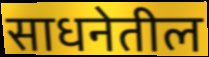
साधनेतील